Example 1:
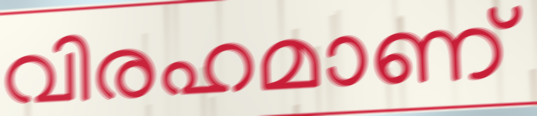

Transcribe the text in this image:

വിരഹമാണ്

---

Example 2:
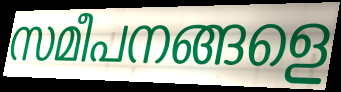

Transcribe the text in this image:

സമീപനങ്ങളെ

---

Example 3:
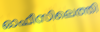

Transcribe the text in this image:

ഓഫീസിലെത്തി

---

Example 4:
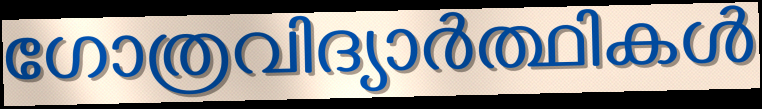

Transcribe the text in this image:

ഗോത്രവിദ്യാർത്ഥികൾ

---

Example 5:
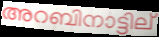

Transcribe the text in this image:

അറബിനാട്ടില്